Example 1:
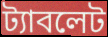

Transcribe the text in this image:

ট্যাবলেট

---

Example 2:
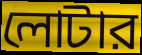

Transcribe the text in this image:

লোটার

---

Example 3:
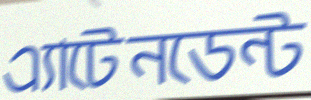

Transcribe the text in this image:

এ্যাটেনডেন্ট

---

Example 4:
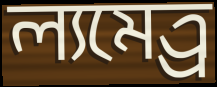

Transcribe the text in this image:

ল্যমেত্র্র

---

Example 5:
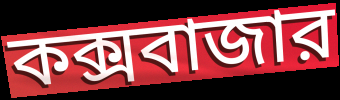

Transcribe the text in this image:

কক্সবাজার